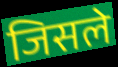
जिसले